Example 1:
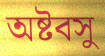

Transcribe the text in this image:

অষ্টবসু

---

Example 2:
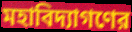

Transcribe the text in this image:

মহাবিদ্যাগণের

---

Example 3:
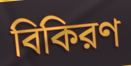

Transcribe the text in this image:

বিকিরণ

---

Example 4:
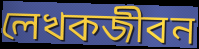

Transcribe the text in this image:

লেখকজীবন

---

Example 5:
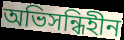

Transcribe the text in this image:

অভিসন্ধিহীন